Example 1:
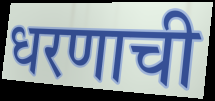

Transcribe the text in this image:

धरणाची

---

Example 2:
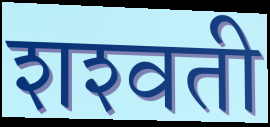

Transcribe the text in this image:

शश्वती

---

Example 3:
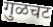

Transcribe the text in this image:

गुळचट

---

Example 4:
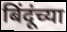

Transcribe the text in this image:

बिंदूंच्या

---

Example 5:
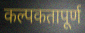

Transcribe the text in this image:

कल्पकतापूर्ण